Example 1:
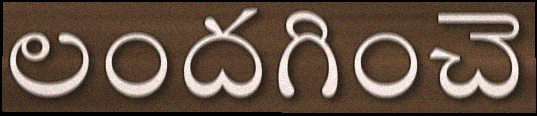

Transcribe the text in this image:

లందగించె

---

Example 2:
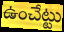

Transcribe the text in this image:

ఉంచేట్టు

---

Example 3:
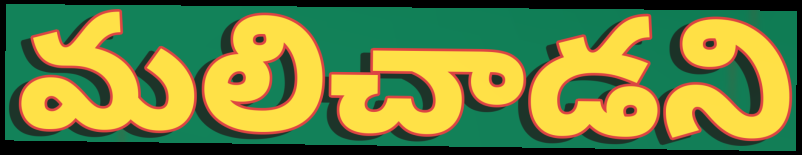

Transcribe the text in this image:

మలిచాడని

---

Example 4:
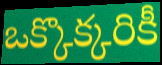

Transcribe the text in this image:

ఒక్కొక్కరికీ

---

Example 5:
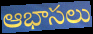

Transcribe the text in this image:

ఆభాసలు